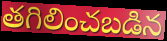
తగిలించబడిన